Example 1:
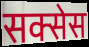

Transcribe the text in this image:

सक्सेस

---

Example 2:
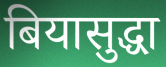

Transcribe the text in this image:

बियासुद्धा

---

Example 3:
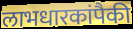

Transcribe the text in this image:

लाभधारकांपैकी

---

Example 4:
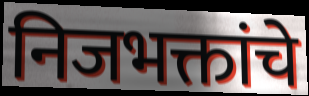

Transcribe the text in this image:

निजभक्तांचे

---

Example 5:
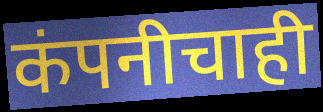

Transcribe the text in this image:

कंपनीचाही